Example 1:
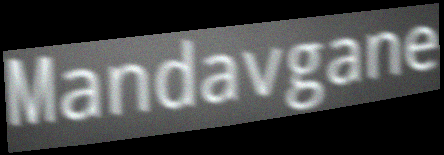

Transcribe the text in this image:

Mandavgane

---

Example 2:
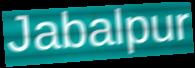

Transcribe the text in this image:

Jabalpur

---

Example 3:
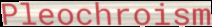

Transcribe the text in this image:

Pleochroism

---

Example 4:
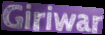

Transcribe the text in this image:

Giriwar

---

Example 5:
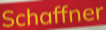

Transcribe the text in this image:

Schaffner